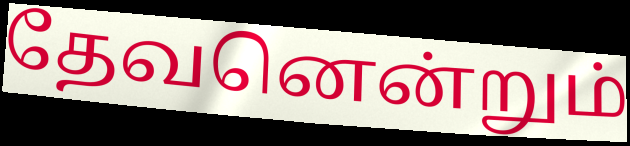
தேவனென்றும்